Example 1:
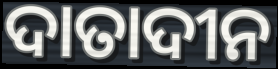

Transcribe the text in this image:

ଦାତାଦୀନ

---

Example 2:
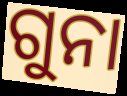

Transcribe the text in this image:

ଗୁନା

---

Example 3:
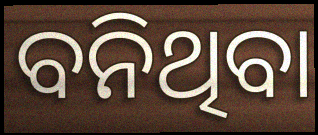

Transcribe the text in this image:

ବନିଥିବା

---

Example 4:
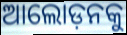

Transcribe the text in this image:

ଆଲୋଡ଼ନକୁ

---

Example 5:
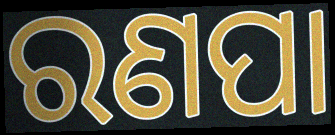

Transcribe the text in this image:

ରଣପା